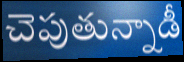
చెపుతున్నాడీ